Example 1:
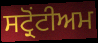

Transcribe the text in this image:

ਸਟ੍ਰੋਂਟੀਅਮ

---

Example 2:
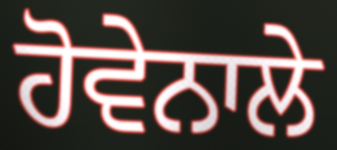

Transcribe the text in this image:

ਹੋਵੇਨਾਲੇ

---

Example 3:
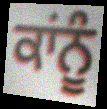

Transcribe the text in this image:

ਕਾਂਨੂੰ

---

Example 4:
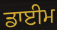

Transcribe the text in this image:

ਡਾਈਮ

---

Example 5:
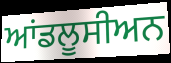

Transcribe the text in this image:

ਆਂਡਲੂਸੀਅਨ